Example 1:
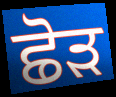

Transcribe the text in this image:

ਛੋੜ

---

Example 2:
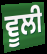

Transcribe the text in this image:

ਵੂਲੀ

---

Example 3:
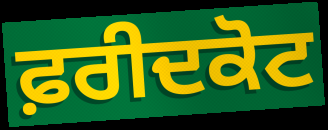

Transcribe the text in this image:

ਫ਼ਰੀਦਕੋਟ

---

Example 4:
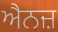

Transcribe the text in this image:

ਐਨਜ਼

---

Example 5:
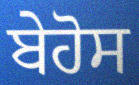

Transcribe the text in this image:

ਬੇਹੋਸ